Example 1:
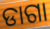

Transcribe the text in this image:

ଡାଗା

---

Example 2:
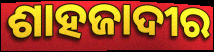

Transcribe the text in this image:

ଶାହଜାଦୀର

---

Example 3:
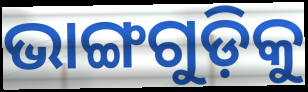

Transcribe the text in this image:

ଭାଙ୍ଗଗୁଡ଼ିକୁ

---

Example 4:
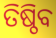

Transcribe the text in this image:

ତିଷ୍ଠିବ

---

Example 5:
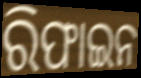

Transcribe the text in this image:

ରିଫାଇନ